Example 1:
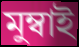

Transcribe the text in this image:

মুম্বাই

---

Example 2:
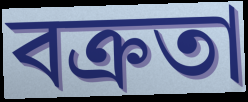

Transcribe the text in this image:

বক্ৰতা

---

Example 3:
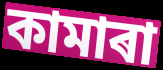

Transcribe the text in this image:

কামাৰা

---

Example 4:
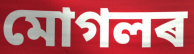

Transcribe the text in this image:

মোগলৰ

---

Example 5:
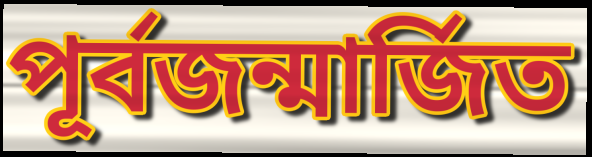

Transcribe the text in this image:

পূৰ্বজন্মাৰ্জিত